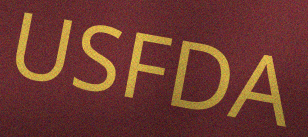
USFDA